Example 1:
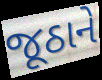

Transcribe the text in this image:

જૂઠાને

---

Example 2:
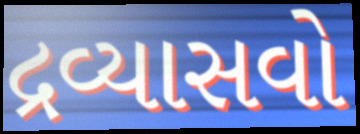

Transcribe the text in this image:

દ્રવ્યાસવો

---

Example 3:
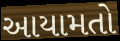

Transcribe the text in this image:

આયામતો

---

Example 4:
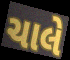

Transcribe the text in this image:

ચાલે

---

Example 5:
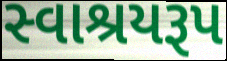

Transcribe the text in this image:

સ્વાશ્રયરૂપ